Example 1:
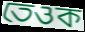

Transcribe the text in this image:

তেওক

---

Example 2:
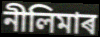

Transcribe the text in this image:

নীলিমাৰ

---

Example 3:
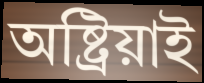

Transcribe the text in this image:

অষ্ট্ৰিয়াই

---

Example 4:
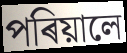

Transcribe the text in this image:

পৰিয়ালে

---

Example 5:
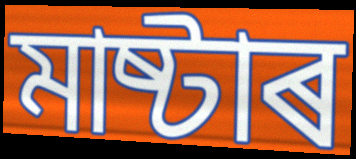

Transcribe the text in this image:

মাষ্টাৰ